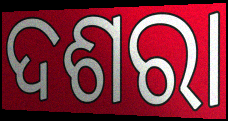
ଦଶରା